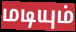
மடியும்